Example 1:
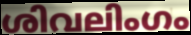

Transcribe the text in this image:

ശിവലിംഗം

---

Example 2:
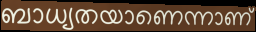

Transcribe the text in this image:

ബാധ്യതയാണെന്നാണ്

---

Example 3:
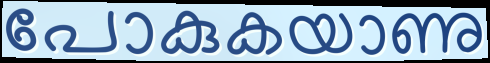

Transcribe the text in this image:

പോകുകയാണു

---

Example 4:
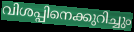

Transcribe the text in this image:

വിശപ്പിനെക്കുറിച്ചും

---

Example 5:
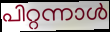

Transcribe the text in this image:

പിറ്റന്നാൾ